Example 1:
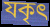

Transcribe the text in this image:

যকৃৎ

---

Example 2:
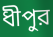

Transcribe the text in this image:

ধীপুর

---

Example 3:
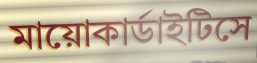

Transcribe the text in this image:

মায়োকার্ডাইটিসে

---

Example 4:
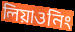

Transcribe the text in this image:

লিয়াওনিং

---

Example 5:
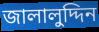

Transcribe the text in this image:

জালালুদ্দিন